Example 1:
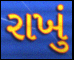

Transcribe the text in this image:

રાખું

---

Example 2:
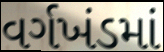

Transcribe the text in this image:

વર્ગખંડમાં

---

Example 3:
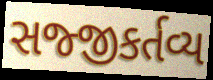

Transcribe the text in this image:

સજ્જીકર્તવ્ય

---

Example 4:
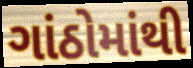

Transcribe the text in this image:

ગાંઠોમાંથી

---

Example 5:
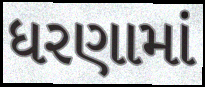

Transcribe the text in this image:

ધરણામાં